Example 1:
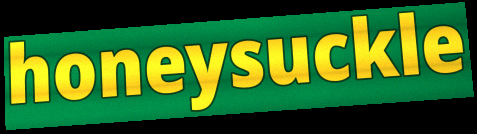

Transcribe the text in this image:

honeysuckle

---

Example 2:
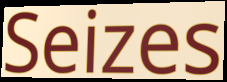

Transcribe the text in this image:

Seizes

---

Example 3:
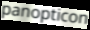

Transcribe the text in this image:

panopticon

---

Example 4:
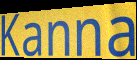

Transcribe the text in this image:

Kanna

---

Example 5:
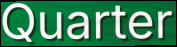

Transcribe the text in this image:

Quarter